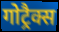
गोट्रैक्स